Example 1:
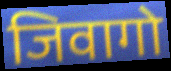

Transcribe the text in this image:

जिवागो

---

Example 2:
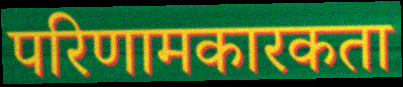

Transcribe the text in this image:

परिणामकारकता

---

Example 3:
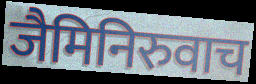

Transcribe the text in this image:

जैमिनिरुवाच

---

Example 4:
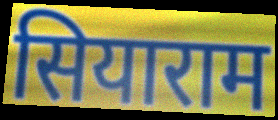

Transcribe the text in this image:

सियाराम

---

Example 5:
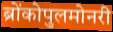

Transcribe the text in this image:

ब्रोंकोपुलमोनरी